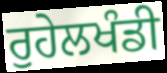
ਰੁਹੇਲਖੰਡੀ